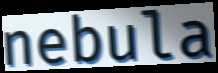
nebula